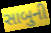
સાબુની